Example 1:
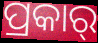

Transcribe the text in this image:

ପ୍ରକାର୍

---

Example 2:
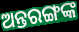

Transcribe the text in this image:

ଅନ୍ତରଙ୍ଗଙ୍କ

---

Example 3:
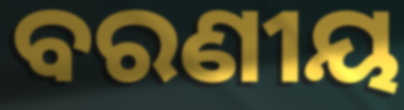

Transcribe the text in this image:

ବରଣୀୟ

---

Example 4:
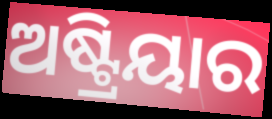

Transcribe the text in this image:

ଅଷ୍ଟ୍ରିୟାର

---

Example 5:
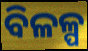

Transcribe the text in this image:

ବିଳଳ୍ପ